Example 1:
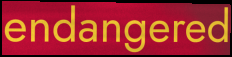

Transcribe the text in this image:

endangered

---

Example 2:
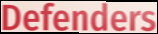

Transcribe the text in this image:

Defenders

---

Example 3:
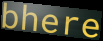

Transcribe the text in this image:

bhere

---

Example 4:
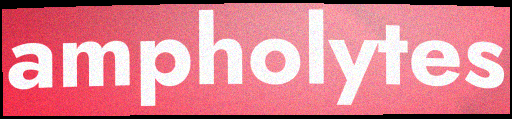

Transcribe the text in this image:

ampholytes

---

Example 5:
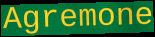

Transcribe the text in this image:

Agremone